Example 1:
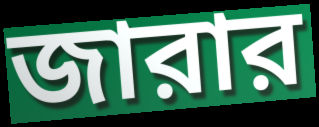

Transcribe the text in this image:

জারার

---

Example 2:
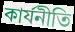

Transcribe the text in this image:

কার্যনীতি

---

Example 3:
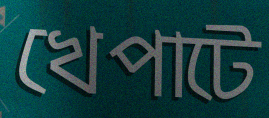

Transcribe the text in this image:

খেপাটে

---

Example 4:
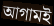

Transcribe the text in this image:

আগামই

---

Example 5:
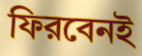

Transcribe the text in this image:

ফিরবেনই